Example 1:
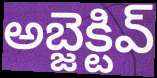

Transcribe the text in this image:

అబ్జెక్టివ్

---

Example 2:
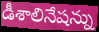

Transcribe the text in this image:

డీశాలినేషన్ను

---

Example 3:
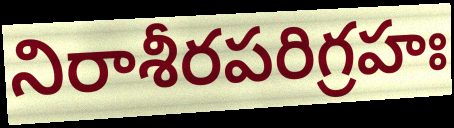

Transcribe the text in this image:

నిరాశీరపరిగ్రహః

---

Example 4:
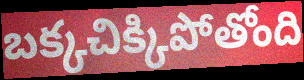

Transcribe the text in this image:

బక్కచిక్కిపోతోంది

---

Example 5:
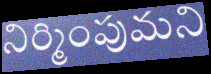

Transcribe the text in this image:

నిర్మింపుమని